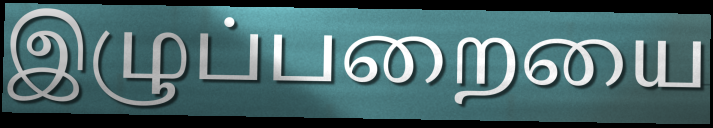
இழுப்பறையை